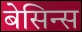
बेसिन्स